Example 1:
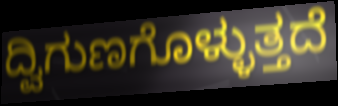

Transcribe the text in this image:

ದ್ವಿಗುಣಗೊಳ್ಳುತ್ತದೆ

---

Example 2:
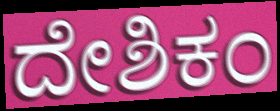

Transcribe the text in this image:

ದೇಶಿಕಂ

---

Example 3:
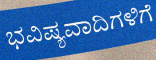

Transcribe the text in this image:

ಭವಿಷ್ಯವಾದಿಗಳಿಗೆ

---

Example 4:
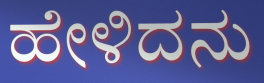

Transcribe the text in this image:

ಹೇಳಿದನು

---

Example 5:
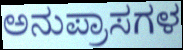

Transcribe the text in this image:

ಅನುಪ್ರಾಸಗಳ